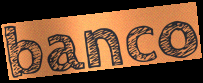
banco